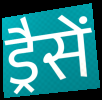
ड्रैसें